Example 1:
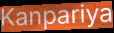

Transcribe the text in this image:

Kanpariya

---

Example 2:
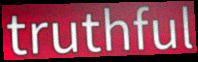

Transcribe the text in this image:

truthful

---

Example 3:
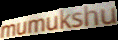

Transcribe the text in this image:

mumukshu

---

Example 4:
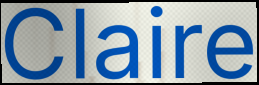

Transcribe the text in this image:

Claire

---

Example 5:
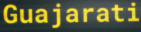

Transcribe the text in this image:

Guajarati